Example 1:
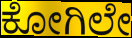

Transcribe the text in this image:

ಕೋಗಿಲೇ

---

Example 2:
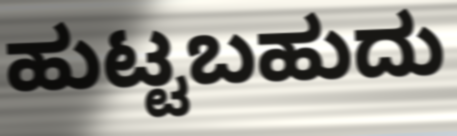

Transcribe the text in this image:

ಹುಟ್ಟಬಹುದು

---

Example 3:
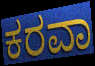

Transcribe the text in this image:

ಕರವಾ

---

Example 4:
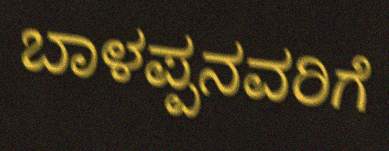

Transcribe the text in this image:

ಬಾಳಪ್ಪನವರಿಗೆ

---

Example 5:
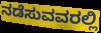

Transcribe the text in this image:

ನಡೆಸುವವರಲ್ಲಿ